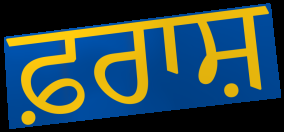
ਫ਼ਰਾਸ਼